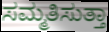
ಸಮ್ಮತಿಸುತ್ತಾ